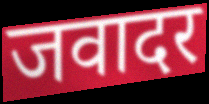
जवादर